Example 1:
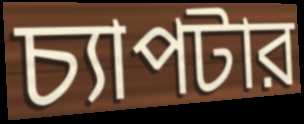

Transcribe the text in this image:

চ্যাপটার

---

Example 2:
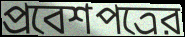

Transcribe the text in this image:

প্রবেশপত্রের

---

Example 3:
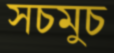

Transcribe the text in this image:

সচমুচ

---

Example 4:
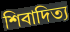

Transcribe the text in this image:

শিবাদিত্য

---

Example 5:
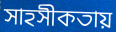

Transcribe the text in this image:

সাহসীকতায়